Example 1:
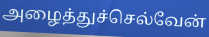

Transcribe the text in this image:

அழைத்துச்செல்வேன்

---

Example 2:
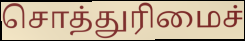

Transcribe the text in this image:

சொத்துரிமைச்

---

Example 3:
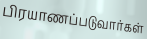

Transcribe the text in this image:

பிரயாணப்படுவார்கள்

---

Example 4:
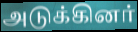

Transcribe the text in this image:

அடுக்கினர்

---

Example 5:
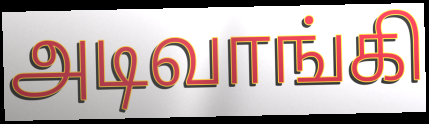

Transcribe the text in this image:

அடிவாங்கி